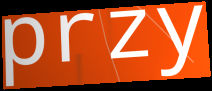
przy